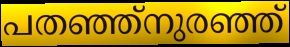
പതഞ്ഞ്നുരഞ്ഞ്